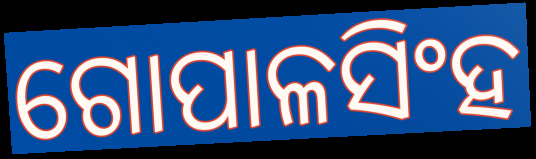
ଗୋପାଳସିଂହ